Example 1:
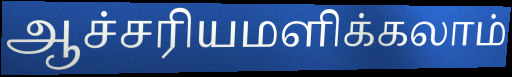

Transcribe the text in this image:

ஆச்சரியமளிக்கலாம்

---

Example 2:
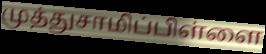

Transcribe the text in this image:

முத்துசாமிப்பிள்ளை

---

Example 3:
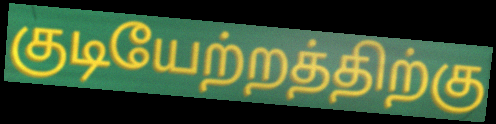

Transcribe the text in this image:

குடியேற்றத்திற்கு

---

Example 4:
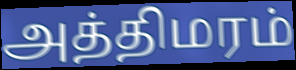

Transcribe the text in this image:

அத்திமரம்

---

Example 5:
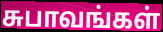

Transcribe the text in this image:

சுபாவங்கள்